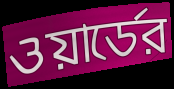
ওয়ার্ডের